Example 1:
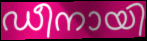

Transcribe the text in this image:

ഡീനായി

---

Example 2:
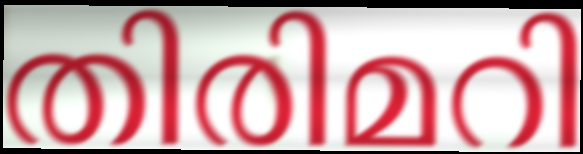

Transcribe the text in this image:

തിരിമറി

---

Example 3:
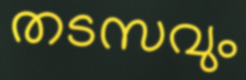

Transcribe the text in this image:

തടസവും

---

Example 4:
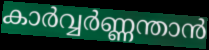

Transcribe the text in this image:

കാർവ്വർണ്ണന്താൻ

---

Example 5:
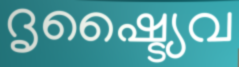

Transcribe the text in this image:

ദൃഷ്ട്യൈവ